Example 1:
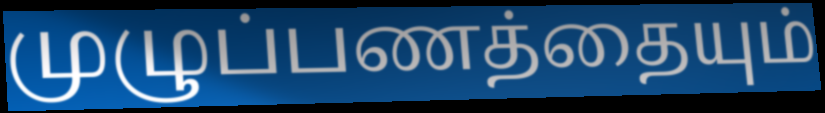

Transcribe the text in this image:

முழுப்பணத்தையும்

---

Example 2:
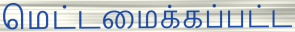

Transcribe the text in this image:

மெட்டமைக்கப்பட்ட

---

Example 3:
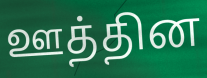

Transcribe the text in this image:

ஊத்தின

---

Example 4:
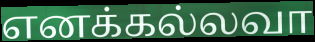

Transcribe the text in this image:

எனக்கல்லவா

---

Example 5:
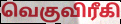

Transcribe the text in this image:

வெகுவிரீகி